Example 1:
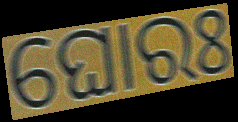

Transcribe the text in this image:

ଘୋରଃ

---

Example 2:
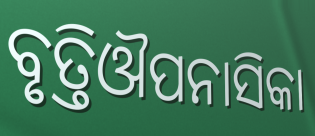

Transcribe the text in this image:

ବୃତ୍ତିଔପନାସିକା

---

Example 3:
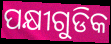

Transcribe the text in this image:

ପକ୍ଷୀଗୁଡିକ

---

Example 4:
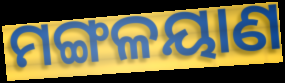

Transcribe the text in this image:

ମଙ୍ଗଳୟାଣ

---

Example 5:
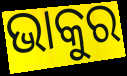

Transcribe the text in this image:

ଭାକୁର